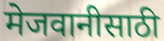
मेजवानीसाठी